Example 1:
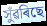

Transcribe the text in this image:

সুঁৱৰিছে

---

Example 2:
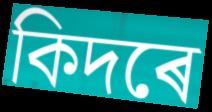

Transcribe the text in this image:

কিদৰে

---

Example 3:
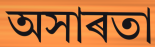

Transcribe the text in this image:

অসাৰতা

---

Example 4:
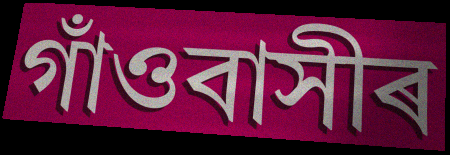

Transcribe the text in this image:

গাঁওবাসীৰ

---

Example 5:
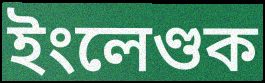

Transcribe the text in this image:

ইংলেণ্ডক